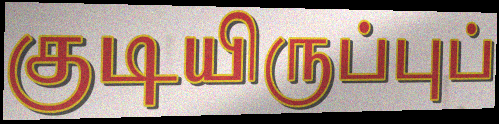
குடியிருப்புப்